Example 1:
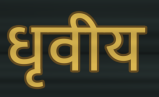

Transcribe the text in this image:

धृवीय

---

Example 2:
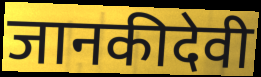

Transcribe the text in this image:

जानकीदेवी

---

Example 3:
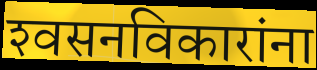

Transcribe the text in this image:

श्वसनविकारांना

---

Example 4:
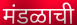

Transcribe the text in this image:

मंडळाची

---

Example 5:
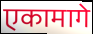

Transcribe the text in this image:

एकामागे